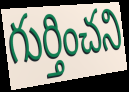
గుర్తించని